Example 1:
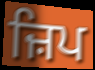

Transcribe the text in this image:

ਜ਼ਿਪ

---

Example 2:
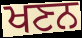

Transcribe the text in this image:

ਖਣਨ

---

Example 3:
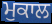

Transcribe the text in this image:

ਮੁਕਾਲ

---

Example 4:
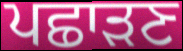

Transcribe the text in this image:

ਪਛਾੜਣ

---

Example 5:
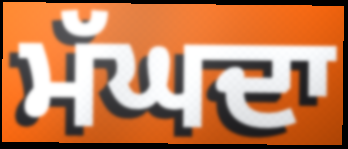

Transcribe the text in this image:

ਮੱਘਦਾ